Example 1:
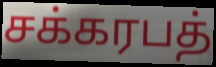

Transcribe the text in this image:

சக்கரபத்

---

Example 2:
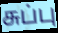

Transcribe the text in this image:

சுப்பு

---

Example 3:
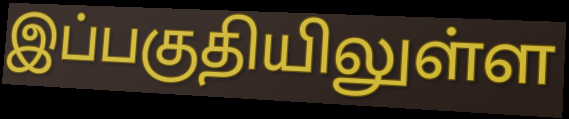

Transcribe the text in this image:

இப்பகுதியிலுள்ள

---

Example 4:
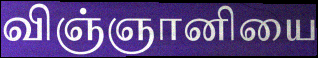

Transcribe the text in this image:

விஞ்ஞானியை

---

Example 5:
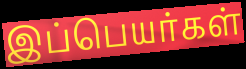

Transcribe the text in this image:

இப்பெயர்கள்